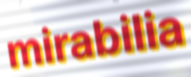
mirabilia